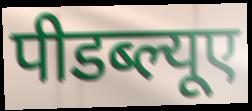
पीडब्ल्यूए